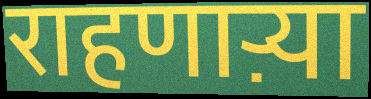
राहणाऱ्‍या